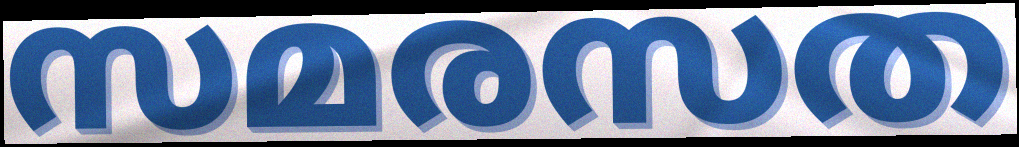
സമരസത